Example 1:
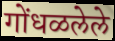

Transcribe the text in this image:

गोंधळलेले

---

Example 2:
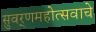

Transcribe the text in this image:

सुवर्णमहोत्सवाचे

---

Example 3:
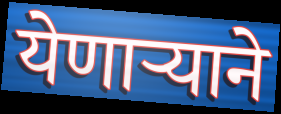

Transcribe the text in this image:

येणाऱ्याने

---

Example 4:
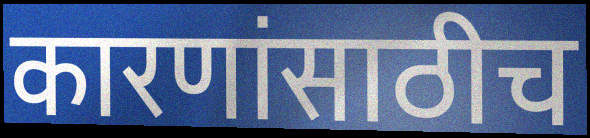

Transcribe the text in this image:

कारणांसाठीच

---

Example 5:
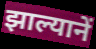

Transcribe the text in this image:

झाल्यानें